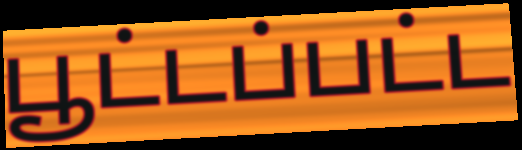
பூட்டப்பட்ட